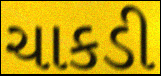
ચાકડી